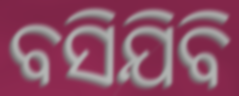
ବସିଯିବି